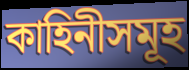
কাহিনীসমূহ